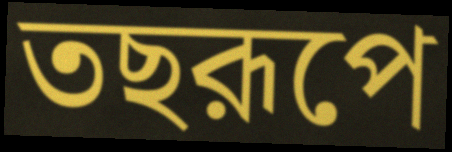
তছরূপে